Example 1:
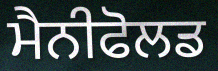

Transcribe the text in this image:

ਮੈਨੀਫੋਲਡ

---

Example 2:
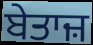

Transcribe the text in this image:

ਬੇਤਾਜ਼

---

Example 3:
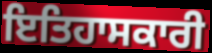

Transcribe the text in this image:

ਇਤਿਹਾਸਕਾਰੀ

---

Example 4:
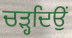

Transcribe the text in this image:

ਚੜ੍ਹ੍ਹਦਿਉਂ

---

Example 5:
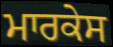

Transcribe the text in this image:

ਮਾਰਕੇਸ